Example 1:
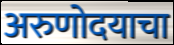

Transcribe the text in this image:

अरुणोदयाचा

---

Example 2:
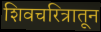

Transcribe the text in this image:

शिवचरित्रातून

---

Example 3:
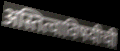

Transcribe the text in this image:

अस्तित्वाविषयीची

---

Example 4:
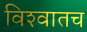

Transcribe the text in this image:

विश्वातच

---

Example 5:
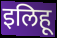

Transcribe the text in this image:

इलिहू